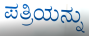
ಪತ್ರಿಯನ್ನು